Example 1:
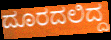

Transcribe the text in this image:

ದೂರದಲಿದ್ದ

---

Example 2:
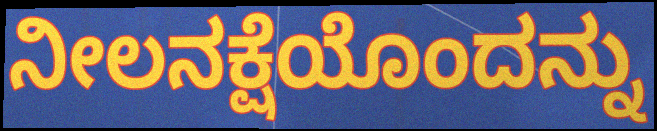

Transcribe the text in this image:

ನೀಲನಕ್ಷೆಯೊಂದನ್ನು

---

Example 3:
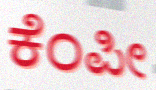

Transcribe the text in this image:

ಕೆಂಪೀ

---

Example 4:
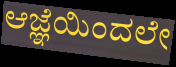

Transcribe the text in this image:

ಆಜ್ಞೆಯಿಂದಲೇ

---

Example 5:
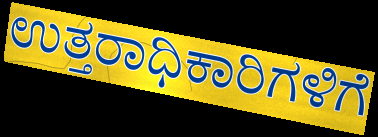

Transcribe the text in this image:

ಉತ್ತರಾಧಿಕಾರಿಗಳಿಗೆ